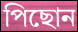
পিছোন